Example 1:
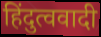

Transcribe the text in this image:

हिंदुत्ववादी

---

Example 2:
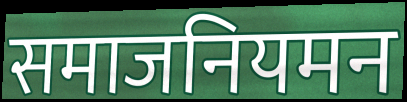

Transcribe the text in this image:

समाजनियमन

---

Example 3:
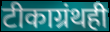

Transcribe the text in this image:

टीकाग्रंथही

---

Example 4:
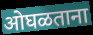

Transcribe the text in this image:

ओघळताना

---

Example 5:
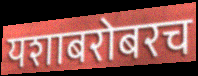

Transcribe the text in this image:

यशाबरोबरच